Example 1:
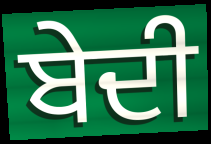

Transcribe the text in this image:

ਬੇਦੀ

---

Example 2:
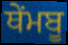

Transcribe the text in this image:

ਥੇਂਮਬੂ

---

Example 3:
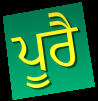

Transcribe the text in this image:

ਪੂਰੈ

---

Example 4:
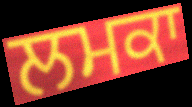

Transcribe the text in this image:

ਲਮਕਾ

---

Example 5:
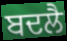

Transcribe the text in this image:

ਬਦਲੈ